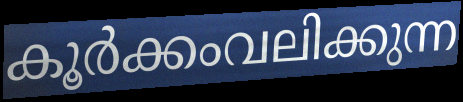
കൂർക്കംവലിക്കുന്ന